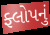
ફ્લોપનું